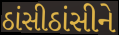
ઠાંસીઠાંસીને